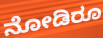
ನೋಡಿರೂ